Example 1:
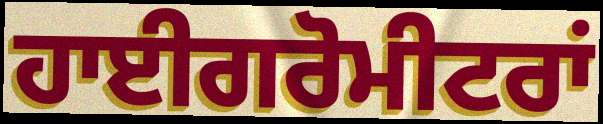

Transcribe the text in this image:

ਹਾਈਗਰੋਮੀਟਰਾਂ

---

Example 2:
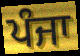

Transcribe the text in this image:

ਪੰਜਾ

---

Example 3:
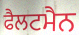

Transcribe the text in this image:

ਫੈਲਟਮੈਨ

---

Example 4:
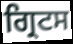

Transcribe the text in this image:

ਗ੍ਰਿਟਸ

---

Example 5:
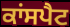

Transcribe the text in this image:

ਕਾਂਸਪੈਟ